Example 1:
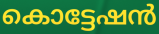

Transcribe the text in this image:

കൊട്ടേഷൻ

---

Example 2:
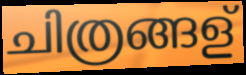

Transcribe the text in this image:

ചിത്രങ്ങള്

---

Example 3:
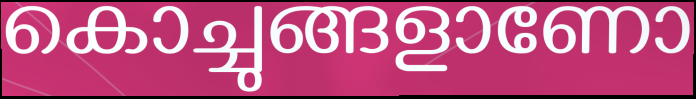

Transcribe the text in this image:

കൊച്ചുങ്ങളാണോ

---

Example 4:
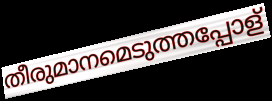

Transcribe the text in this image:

തീരുമാനമെടുത്തപ്പോള്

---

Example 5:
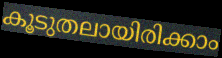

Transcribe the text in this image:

കൂടുതലായിരിക്കാം